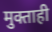
मुक्ताही